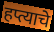
हप्त्याचे